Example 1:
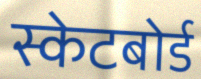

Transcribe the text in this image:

स्केटबोर्ड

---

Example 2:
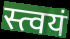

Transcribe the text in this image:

स्त्वयं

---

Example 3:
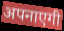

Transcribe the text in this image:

अपनाएगी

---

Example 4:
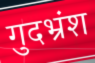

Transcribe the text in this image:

गुदभ्रंश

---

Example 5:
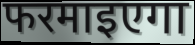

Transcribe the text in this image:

फरमाइएगा